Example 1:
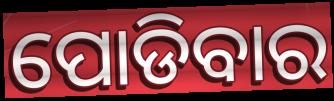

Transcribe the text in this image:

ପୋଡିବାର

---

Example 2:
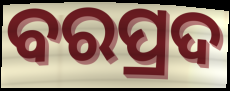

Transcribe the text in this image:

ବରପ୍ରଦ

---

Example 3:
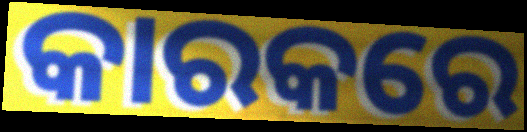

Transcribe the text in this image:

କାରକରେ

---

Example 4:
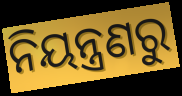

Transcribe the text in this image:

ନିୟନ୍ତ୍ରଣରୁ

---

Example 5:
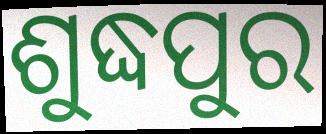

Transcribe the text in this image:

ଶୁଦ୍ଧପୁର